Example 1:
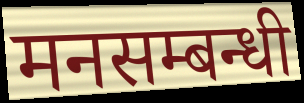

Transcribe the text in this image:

मनसम्बन्धी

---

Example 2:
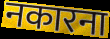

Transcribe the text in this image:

नकारना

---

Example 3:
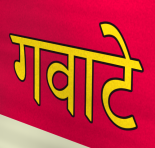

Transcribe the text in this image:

गवाटे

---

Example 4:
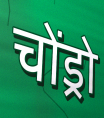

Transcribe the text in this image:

चोंड्रो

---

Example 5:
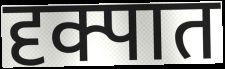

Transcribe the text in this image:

दृक्पात